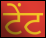
ਟੇਂਟ